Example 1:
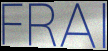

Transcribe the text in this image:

FRAI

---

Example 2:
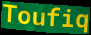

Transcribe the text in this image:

Toufiq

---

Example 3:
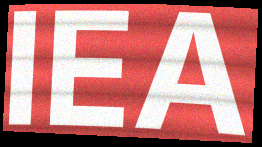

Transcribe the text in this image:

IEA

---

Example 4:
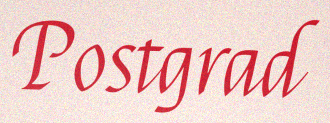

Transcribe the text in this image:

Postgrad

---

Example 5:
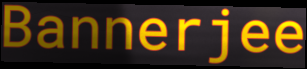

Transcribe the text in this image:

Bannerjee